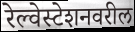
रेल्वेस्टेशनवरील